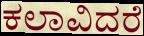
ಕಲಾವಿದರೆ